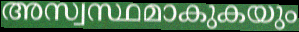
അസ്വസ്ഥമാകുകയും